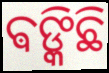
ଵଙ୍କିଛି